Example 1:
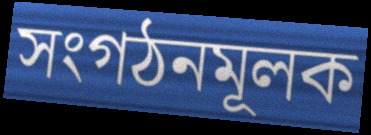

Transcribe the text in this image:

সংগঠনমূলক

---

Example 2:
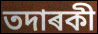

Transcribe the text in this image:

তদাৰকী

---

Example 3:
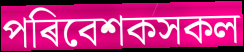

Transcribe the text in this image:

পৰিবেশকসকল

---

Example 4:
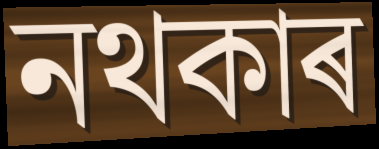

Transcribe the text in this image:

নথকাৰ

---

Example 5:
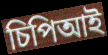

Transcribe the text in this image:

চিপিআই